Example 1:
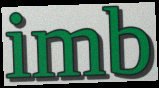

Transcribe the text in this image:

imb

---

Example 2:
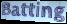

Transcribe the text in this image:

Batting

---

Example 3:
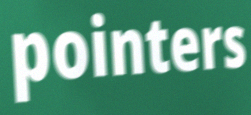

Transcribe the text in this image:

pointers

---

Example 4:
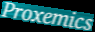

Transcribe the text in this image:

Proxemics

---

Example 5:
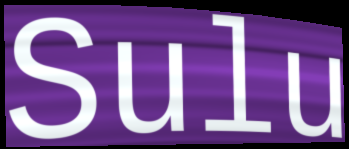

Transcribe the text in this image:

Sulu